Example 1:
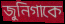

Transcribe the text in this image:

জুনিগাকে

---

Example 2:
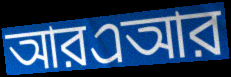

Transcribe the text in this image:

আরএআর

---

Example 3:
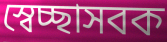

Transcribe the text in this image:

স্বেচ্ছাসবক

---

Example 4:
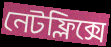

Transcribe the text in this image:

নেটফ্লিক্সে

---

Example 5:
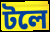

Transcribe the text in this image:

টলে